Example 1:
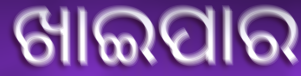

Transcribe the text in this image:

ଖାଇପାର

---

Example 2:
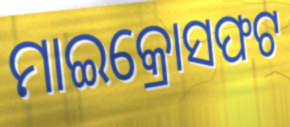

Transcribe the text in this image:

ମାଇକ୍ରୋସଫଟ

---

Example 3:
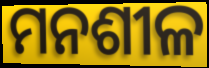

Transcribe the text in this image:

ମନଶୀଳ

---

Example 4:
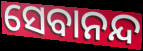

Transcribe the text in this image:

ସେବାନନ୍ଦ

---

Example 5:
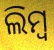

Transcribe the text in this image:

ଲିମ୍ବ